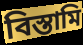
বিস্তামি